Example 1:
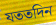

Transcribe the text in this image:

যততদিন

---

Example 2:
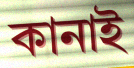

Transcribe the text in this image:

কানাই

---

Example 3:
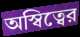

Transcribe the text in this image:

অস্বিত্বের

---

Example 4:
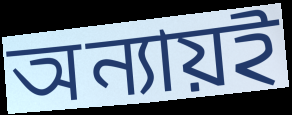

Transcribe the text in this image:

অন্যায়ই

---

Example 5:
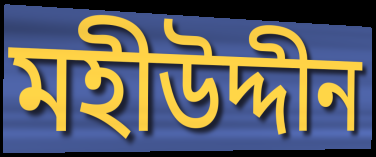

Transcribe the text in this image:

মহীউদ্দীন